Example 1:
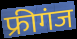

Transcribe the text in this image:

फ्रीगंज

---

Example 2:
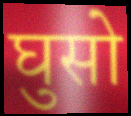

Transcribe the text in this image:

घुसो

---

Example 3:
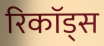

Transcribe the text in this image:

रिकॉड्स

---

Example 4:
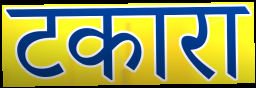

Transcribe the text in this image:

टकारा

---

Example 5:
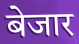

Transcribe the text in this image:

बेजार